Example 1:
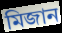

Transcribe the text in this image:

মিজান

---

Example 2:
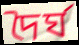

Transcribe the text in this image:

দৈৰ্ঘ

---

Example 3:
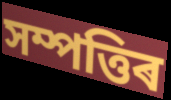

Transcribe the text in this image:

সম্পত্তিৰ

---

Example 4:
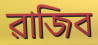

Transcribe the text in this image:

ৱাজিব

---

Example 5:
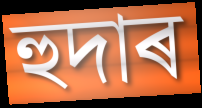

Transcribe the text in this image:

হুদাৰ